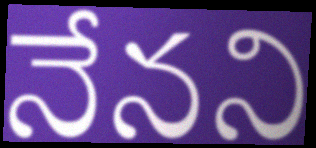
నేనని